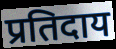
प्रतिदाय